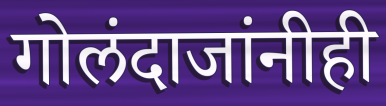
गोलंदाजांनीही